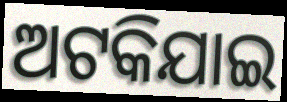
ଅଟକିଯାଇ